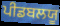
ਪੀਡਬਲਯੂ